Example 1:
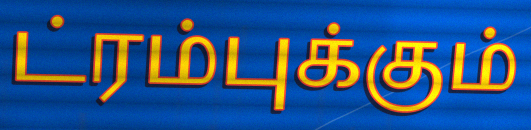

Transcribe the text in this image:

ட்ரம்புக்கும்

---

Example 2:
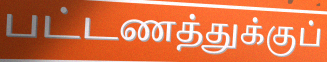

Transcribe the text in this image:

பட்டணத்துக்குப்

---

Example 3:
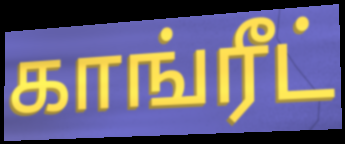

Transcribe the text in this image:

காங்ரீட்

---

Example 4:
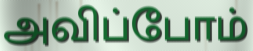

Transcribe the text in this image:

அவிப்போம்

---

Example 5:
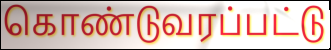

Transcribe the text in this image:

கொண்டுவரப்பட்டு